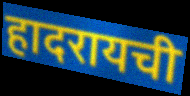
हादरायची